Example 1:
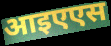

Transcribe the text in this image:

आइएएस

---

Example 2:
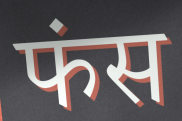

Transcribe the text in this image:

फंस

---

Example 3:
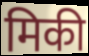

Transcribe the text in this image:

मिकी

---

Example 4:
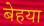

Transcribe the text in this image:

बेहया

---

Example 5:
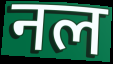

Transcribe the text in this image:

नल